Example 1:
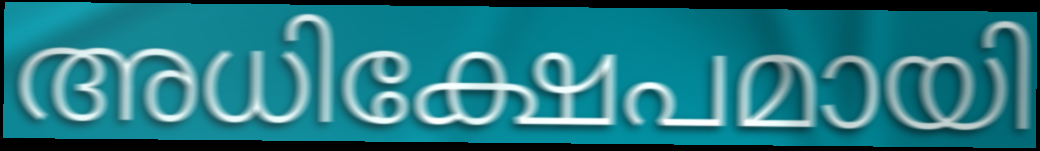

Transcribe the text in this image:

അധിക്ഷേപമായി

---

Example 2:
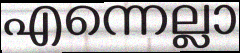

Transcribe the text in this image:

എന്നെല്ലാ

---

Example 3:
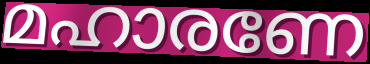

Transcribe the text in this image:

മഹാരണേ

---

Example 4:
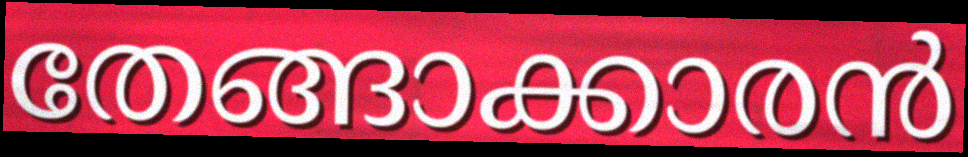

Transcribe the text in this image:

തേങ്ങാക്കാരൻ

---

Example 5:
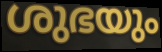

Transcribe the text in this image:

ശുഭയും